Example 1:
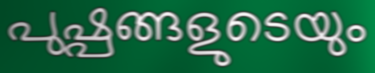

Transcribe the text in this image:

പുഷ്പങ്ങളുടെയും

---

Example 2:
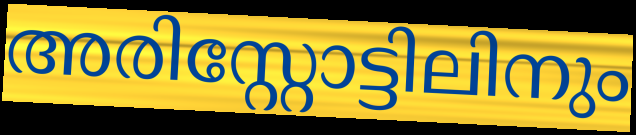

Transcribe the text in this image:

അരിസ്റ്റോട്ടിലിനും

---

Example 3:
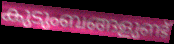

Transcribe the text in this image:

കുടുംബങ്ങളുണ്ട്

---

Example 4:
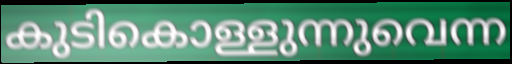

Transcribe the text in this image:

കുടികൊള്ളുന്നുവെന്ന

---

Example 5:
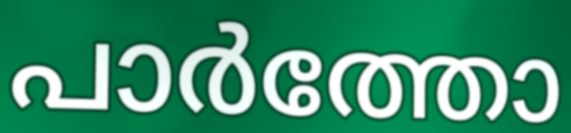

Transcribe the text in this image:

പാർത്തോ